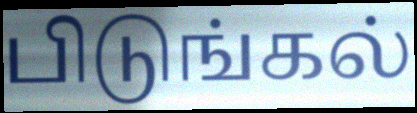
பிடுங்கல்